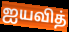
ஐயவித்